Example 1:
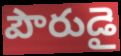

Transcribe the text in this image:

పౌరుడై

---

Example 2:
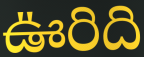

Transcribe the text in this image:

ఊరిది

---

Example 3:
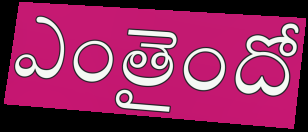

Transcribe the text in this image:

ఎంతైందో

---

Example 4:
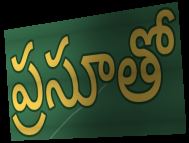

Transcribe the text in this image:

ప్రసూతో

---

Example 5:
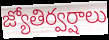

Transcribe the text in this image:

జ్యోతిర్వర్షాలు